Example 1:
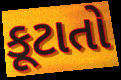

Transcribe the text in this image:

કૂટાતો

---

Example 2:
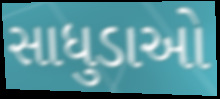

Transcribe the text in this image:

સાધુડાઓ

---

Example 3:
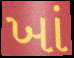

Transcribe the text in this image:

ખાં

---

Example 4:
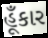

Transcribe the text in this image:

હૂઁકાર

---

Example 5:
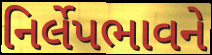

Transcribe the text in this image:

નિર્લેપભાવને